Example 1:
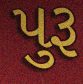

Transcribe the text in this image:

પુરૂ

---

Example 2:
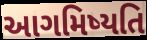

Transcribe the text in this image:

આગમિષ્યતિ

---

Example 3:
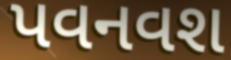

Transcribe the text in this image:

પવનવશ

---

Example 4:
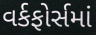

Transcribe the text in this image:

વર્કફોર્સમાં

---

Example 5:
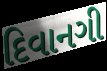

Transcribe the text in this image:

દિવાનગી